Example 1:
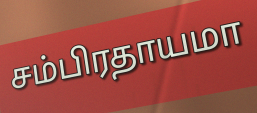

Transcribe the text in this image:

சம்பிரதாயமா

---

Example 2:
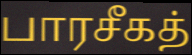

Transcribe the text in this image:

பாரசீகத்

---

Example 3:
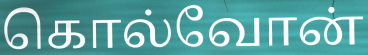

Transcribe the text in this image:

கொல்வோன்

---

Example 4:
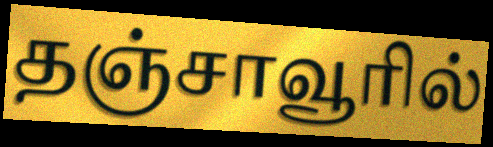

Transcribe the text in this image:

தஞ்சாவூரில்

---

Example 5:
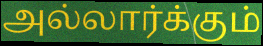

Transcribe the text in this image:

அல்லார்க்கும்